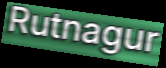
Rutnagur